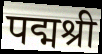
पद्मश्री